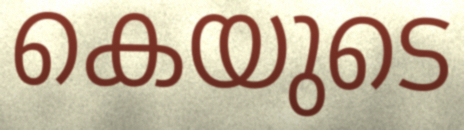
കെയുടെ